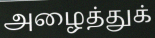
அழைத்துக்